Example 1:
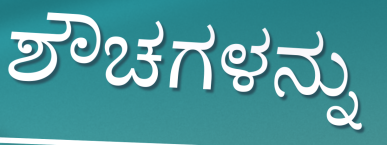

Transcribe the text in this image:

ಶೌಚಗಳನ್ನು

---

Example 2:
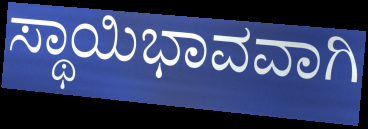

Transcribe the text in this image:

ಸ್ಥಾಯಿಭಾವವಾಗಿ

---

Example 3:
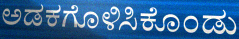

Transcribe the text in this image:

ಅಡಕಗೊಳಿಸಿಕೊಂಡು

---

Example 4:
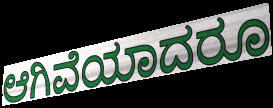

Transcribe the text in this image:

ಆಗಿವೆಯಾದರೂ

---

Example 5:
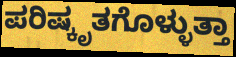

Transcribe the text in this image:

ಪರಿಷ್ಕೃತಗೊಳ್ಳುತ್ತಾ